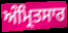
ਅੰਮ੍ਰਿਤਸਾਰ